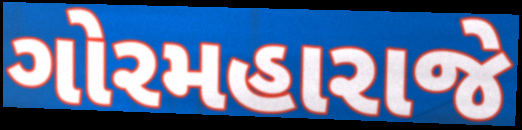
ગોરમહારાજે